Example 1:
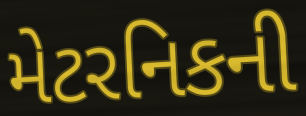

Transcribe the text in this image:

મેટરનિકની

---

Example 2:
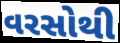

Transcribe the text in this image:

વરસોથી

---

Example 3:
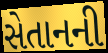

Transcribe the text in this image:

સેતાનની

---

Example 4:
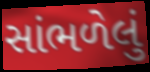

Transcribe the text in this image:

સાંભળેલું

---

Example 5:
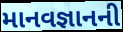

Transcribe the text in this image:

માનવજ્ઞાનની